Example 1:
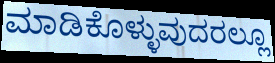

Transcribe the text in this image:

ಮಾಡಿಕೊಳ್ಳುವುದರಲ್ಲೂ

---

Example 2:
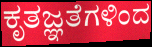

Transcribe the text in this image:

ಕೃತಜ್ಞತೆಗಳಿಂದ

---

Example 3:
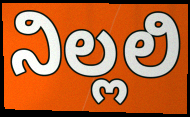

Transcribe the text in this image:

ನಿಲ್ಲಲಿ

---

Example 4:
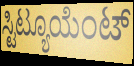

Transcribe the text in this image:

ಸ್ಟಿಟ್ಯೂಯೆಂಟ್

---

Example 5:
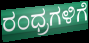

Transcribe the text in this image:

ರಂಧ್ರಗಳಿಗೆ